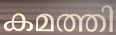
കമത്തി